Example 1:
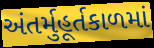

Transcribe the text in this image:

અંતર્મુહૂર્તકાળમાં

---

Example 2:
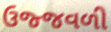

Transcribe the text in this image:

ઉજ્જવળી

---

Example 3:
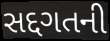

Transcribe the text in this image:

સદ્દગતની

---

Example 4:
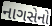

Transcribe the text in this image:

નાગસેનો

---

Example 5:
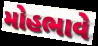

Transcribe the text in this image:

મોહભાવે